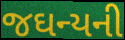
જઘન્યની